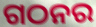
ଗଠନର